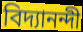
বিদ্যানন্দী